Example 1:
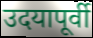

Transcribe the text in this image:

उदयापूर्वी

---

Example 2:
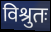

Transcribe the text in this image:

विश्रुतः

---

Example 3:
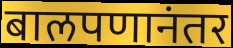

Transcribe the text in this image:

बालपणानंतर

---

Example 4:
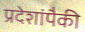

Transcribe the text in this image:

प्रदेशांपैकी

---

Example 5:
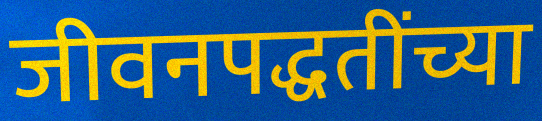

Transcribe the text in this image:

जीवनपद्धतींच्या